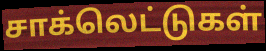
சாக்லெட்டுகள்